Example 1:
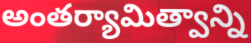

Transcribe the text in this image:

అంతర్యామిత్వాన్ని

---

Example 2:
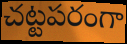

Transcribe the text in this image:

చట్టపరంగా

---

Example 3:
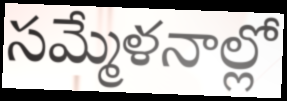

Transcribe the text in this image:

సమ్మేళనాల్లో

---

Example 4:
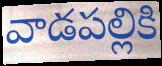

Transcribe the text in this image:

వాడపల్లికి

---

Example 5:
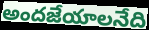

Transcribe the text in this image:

అందజేయాలనేది